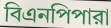
বিএনপিপারা